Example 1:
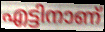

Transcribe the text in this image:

എട്ടിനാണ്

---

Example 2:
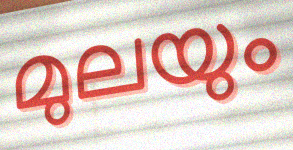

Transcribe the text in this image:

മുലയും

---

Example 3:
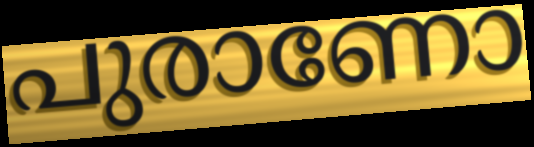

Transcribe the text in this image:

പുരാണോ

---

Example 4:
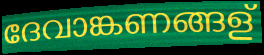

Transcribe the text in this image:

ദേവാങ്കണങ്ങള്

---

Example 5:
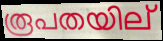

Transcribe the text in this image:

രൂപതയില്